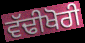
ਵੱਢੀਖੋਰੀ